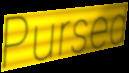
Pursed